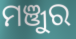
ମଞ୍ଜୁର